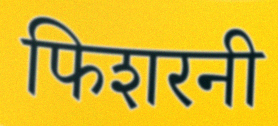
फिशरनी